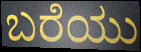
ಬರೆಯು